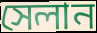
সেলান